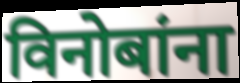
विनोबांना